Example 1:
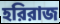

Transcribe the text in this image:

হরিরাজ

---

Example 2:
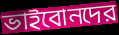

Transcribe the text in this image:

ভাইবোনদের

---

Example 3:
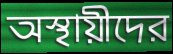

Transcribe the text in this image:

অস্থায়ীদের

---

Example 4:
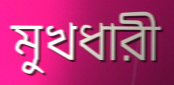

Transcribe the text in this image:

মুখধারী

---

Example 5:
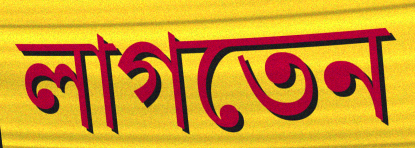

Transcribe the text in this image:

লাগতেন